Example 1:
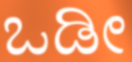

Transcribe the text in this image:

ಒಡೀ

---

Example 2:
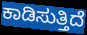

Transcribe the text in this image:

ಕಾಡಿಸುತ್ತಿದೆ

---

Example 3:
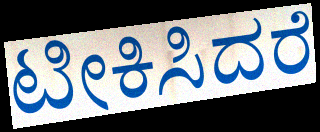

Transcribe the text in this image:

ಟೀಕಿಸಿದರೆ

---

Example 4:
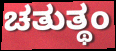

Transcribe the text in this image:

ಚತುತ್ಥಂ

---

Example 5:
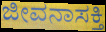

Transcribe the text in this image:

ಜೀವನಾಸಕ್ತಿ